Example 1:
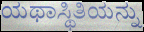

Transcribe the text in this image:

ಯಥಾಸ್ಥಿತಿಯನ್ನು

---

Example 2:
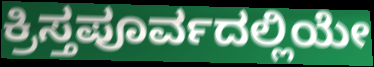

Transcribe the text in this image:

ಕ್ರಿಸ್ತಪೂರ್ವದಲ್ಲಿಯೇ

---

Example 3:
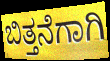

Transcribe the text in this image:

ಬಿತ್ತನೆಗಾಗಿ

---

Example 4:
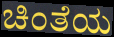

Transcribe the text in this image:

ಚಿಂತೆಯ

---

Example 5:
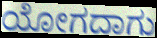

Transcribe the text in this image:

ಯೋಗದಾಗು